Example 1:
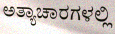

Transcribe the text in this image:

ಅತ್ಯಾಚಾರಗಳಲ್ಲಿ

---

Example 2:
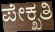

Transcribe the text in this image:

ಪೇಕ್ಖತಿ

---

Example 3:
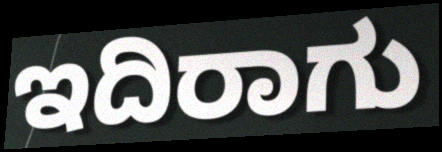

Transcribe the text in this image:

ಇದಿರಾಗು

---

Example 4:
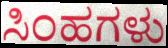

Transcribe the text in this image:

ಸಿಂಹಗಳು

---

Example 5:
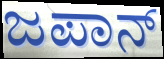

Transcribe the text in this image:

ಜಪಾನ್